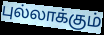
புல்லாக்கும்